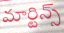
మార్టిన్స్